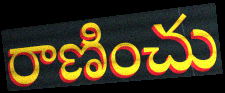
రాణించు